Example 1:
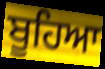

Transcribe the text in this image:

ਬੂਹਿਆ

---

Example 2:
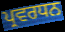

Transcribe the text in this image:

ਪ੍ਰਵਰਧਨ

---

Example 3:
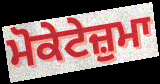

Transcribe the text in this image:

ਮੋਕੇਟੇਜ਼ੁਮਾ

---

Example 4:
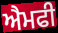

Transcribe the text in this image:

ਐਮਫੀ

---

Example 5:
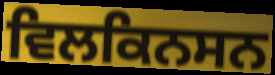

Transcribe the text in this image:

ਵਿਲਕਿਨਸਨ